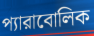
প্যারাবোলিক